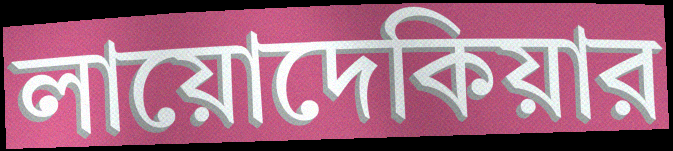
লায়োদেকিয়ার